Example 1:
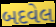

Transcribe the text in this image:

બદવેલ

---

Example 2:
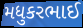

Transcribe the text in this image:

મધુકરભાઈ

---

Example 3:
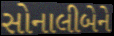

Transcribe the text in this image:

સોનાલીબેને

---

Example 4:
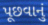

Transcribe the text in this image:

પૂછવાનું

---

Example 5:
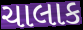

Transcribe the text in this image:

ચાલાક